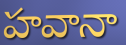
హవానా